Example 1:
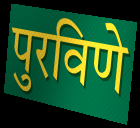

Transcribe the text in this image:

पुरविणे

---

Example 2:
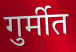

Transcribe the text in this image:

गुर्मीत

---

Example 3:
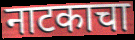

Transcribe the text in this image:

नाटकाचा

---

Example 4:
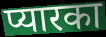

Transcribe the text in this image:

प्यारका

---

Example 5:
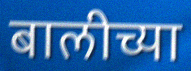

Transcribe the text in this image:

बालीच्या